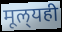
मूल्यही